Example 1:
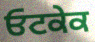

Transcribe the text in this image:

ਓਟਕੇਕ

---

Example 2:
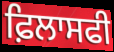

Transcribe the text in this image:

ਫ਼ਿਲਾਸਫੀ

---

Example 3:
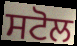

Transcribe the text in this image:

ਸਟੋਲ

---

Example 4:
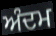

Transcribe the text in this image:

ਅੰਦਮ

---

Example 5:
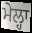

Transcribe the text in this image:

ਮੇਲ੍ਹਾ